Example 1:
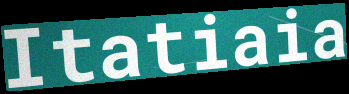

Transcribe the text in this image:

Itatiaia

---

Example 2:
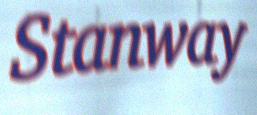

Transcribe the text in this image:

Stanway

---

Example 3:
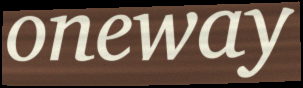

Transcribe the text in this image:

oneway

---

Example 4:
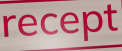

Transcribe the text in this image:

recept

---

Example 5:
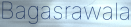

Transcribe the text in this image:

Bagasrawala